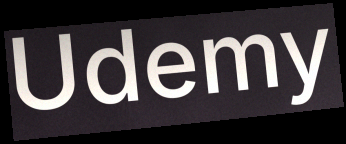
Udemy